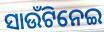
ସାଉଁଟିନେଇ